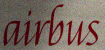
airbus